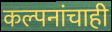
कल्पनांचाही